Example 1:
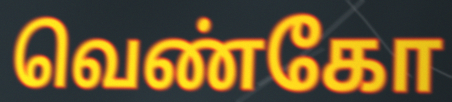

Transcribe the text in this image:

வெண்கோ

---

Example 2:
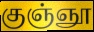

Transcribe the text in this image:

குஞ்ஞூ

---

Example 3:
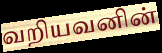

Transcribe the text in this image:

வறியவனின்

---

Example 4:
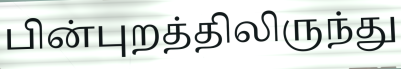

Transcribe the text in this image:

பின்புறத்திலிருந்து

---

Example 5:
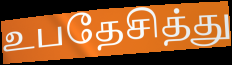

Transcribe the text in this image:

உபதேசித்து